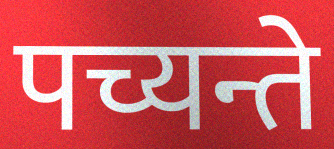
पच्यन्ते